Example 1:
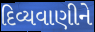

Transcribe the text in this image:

દિવ્યવાણીને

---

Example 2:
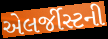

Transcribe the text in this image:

એલર્જીસ્ટની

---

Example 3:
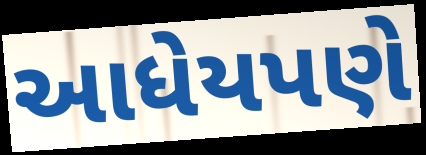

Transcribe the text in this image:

આધેયપણે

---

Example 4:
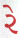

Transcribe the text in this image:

રે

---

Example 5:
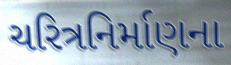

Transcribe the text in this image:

ચરિત્રનિર્માણના